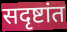
सदृष्टांत